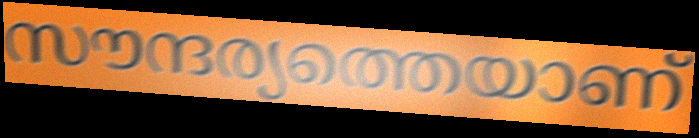
സൗന്ദര്യത്തെയാണ്